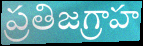
ప్రతిజగ్రాహ